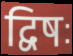
द्विषः